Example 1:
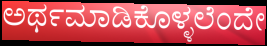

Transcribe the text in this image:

ಅರ್ಥಮಾಡಿಕೊಳ್ಳಲೆಂದೇ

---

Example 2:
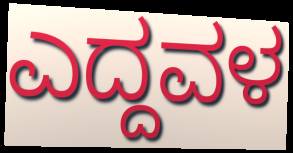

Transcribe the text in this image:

ಎದ್ದವಳ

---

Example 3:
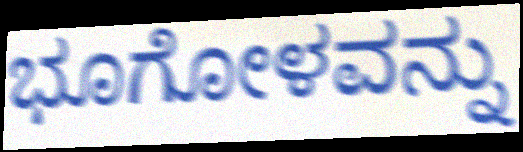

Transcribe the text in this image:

ಭೂಗೋಳವನ್ನು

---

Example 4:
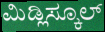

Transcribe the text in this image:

ಮಿಡ್ಲಿಸ್ಕೂಲ್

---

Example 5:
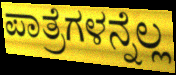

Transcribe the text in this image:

ಪಾತ್ರೆಗಳನ್ನೆಲ್ಲ